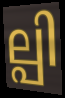
ല്പി